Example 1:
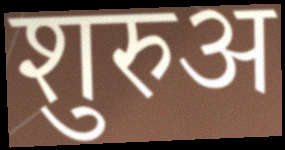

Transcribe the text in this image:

शुरुअ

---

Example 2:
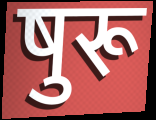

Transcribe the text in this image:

षुरू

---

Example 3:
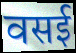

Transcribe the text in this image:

वसई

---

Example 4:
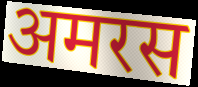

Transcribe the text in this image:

अमरस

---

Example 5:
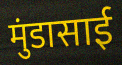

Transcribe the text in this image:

मुंडासाई